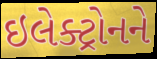
ઇલેક્ટ્રોનને